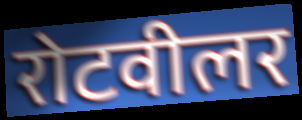
रोटवीलर